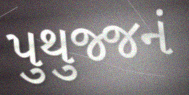
પુથુજ્જનં